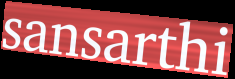
sansarthi